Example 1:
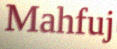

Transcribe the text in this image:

Mahfuj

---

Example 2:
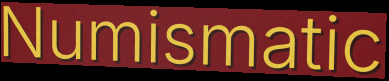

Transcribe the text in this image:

Numismatic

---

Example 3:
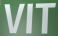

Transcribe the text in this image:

VIT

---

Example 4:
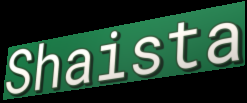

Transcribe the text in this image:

Shaista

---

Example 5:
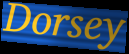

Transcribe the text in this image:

Dorsey